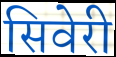
सिवेरी